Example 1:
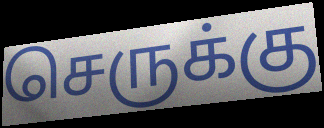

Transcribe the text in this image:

செருக்கு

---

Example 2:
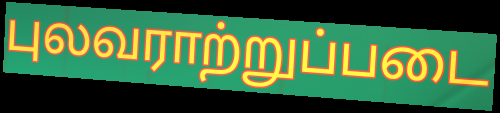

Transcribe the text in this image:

புலவராற்றுப்படை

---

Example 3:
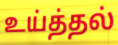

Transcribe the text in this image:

உய்த்தல்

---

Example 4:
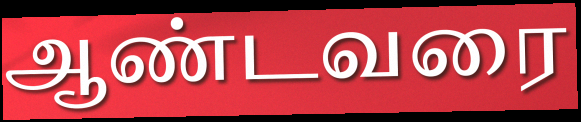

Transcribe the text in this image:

ஆண்டவரை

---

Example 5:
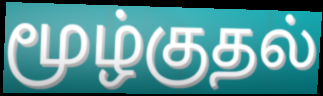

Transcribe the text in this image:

மூழ்குதல்